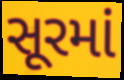
સૂરમાં